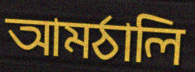
আমঠালি